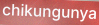
chikungunya